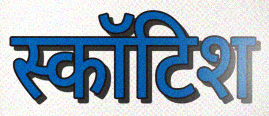
स्कॉटिश